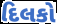
દિલકો